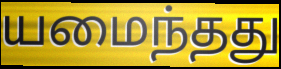
யமைந்தது